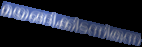
മയങ്ങിക്കിടന്നിരുന്ന